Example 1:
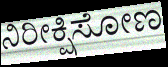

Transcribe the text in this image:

ನಿರೀಕ್ಷಿಸೋಣ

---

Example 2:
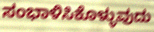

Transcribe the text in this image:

ಸಂಭಾಳಿಸಿಕೊಳ್ಳುವುದು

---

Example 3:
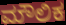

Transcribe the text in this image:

ಮೌಲಿಕ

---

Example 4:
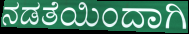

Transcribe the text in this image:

ನಡತೆಯಿಂದಾಗಿ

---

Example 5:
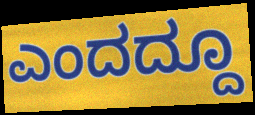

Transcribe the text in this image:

ಎಂದದ್ದೂ